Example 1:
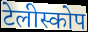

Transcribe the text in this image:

टेलीस्कोप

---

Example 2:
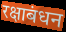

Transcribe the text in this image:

रक्षाबंधन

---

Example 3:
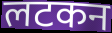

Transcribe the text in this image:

लटकन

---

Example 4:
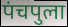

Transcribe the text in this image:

पंचपुला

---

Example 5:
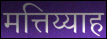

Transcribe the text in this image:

मत्तिय्याह